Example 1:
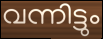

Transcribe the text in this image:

വന്നിട്ടും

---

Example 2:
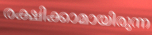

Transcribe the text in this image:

രക്ഷിക്കാമായിരുന്ന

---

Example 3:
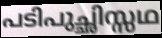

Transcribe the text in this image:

പടിപുച്ഛിസ്സഥ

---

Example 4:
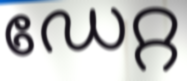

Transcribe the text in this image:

ഡേറ്റ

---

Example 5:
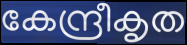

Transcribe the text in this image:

കേന്ദ്രീകൃത